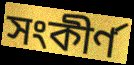
সংকীর্ণ